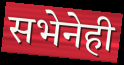
सभेनेही